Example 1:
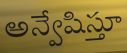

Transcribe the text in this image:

అన్వేషిస్తూ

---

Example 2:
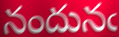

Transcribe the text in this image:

నందునఁ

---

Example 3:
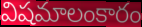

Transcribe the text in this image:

విషమాలంకారం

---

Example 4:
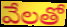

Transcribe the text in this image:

వేలతో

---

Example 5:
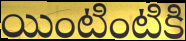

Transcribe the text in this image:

యింటింటికి